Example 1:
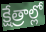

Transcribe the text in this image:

క్షేత్రాల్లో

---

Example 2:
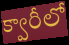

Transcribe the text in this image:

క్వారీలో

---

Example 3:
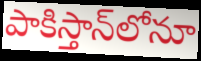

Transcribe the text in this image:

పాకిస్తాన్‌లోనూ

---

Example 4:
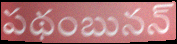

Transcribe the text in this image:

పథంబునన్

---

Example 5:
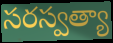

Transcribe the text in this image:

సరస్వత్యా